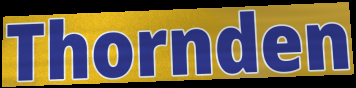
Thornden